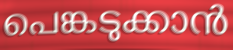
പെങ്കടുക്കാൻ